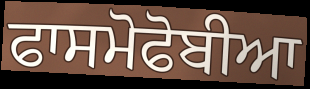
ਫਾਸਮੋਫੋਬੀਆ